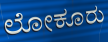
ಲೋಕೂರು